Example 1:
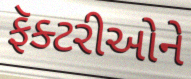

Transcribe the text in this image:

ફૅક્ટરીઓને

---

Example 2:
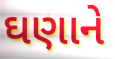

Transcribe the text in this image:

ઘણાને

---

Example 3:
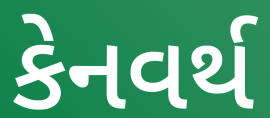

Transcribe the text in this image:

કેનવર્થ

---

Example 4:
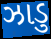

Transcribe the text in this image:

ઝાડુ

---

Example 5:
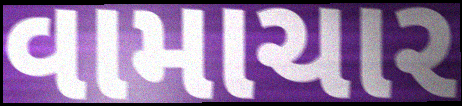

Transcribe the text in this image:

વામાચાર